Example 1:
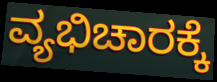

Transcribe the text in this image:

ವ್ಯಭಿಚಾರಕ್ಕೆ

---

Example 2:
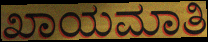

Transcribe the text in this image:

ಖಾಯಮಾತಿ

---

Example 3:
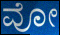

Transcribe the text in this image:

ವೋ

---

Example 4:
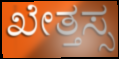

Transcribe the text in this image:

ಖೇತ್ತಸ್ಸ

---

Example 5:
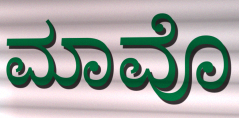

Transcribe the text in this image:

ಮಾವೊ